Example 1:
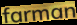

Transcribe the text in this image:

farman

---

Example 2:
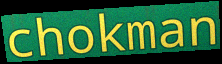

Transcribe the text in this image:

chokman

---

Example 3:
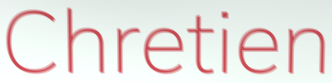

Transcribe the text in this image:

Chretien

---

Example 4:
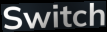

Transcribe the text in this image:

Switch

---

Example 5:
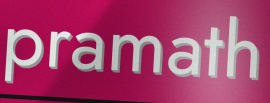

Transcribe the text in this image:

pramath